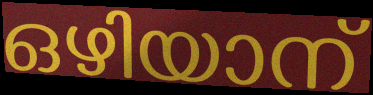
ഒഴിയാന്